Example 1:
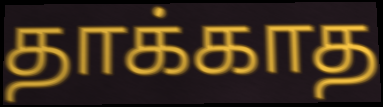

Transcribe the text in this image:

தாக்காத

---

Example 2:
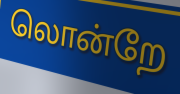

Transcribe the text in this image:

லொன்றே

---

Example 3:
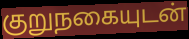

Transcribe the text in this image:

குறுநகையுடன்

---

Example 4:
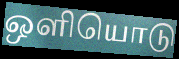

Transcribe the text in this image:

ஒளியொடு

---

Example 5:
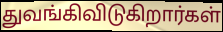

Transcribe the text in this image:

துவங்கிவிடுகிறார்கள்